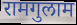
रामगुलाम